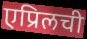
एप्रिलची